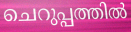
ചെറുപ്പത്തിൽ